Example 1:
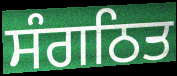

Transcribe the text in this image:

ਸੰਗਠਿਤ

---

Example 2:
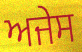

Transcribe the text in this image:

ਅਜੇਸ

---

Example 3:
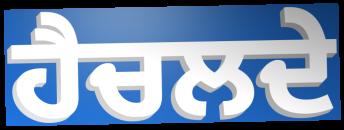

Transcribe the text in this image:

ਹੈਚਲਦੇ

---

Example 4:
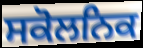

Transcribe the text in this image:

ਸਕੋਲਨਿਕ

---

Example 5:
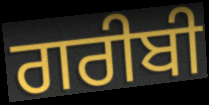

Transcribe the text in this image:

ਗਰੀਬੀ